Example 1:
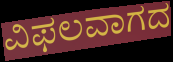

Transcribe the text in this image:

ವಿಫಲವಾಗದ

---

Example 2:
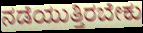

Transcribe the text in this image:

ನಡೆಯುತ್ತಿರಬೇಕು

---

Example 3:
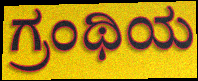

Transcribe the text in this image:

ಗ್ರಂಥಿಯ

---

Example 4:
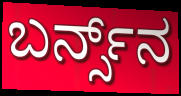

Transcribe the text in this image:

ಬರ್ನ್ಸ್‌ನ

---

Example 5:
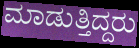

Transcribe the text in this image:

ಮಾಡುತ್ತಿದ್ದರು